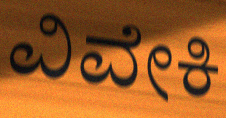
ವಿವೇಕಿ